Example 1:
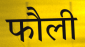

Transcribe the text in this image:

फौली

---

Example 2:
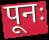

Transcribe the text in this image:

पूनः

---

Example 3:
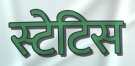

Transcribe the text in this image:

स्टेटिस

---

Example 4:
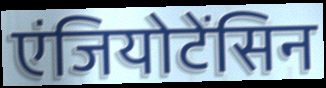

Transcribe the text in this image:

एंजियोटेंसिन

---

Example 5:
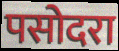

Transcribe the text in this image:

पसोदरा